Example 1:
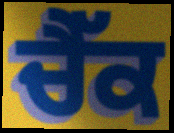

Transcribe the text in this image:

ਚੈੱਕ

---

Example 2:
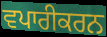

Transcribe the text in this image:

ਵਪਾਰੀਕਰਨ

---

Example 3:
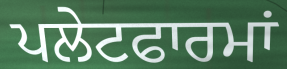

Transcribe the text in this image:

ਪਲੇਟਫਾਰਮਾਂ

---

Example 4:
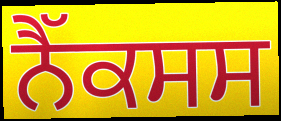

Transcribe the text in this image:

ਨੈੱਕਸਸ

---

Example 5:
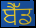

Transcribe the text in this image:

ਬੈੱਡ